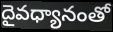
దైవధ్యానంతో